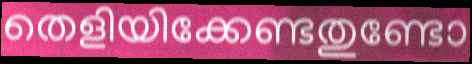
തെളിയിക്കേണ്ടതുണ്ടോ